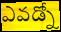
ఎవడ్నో